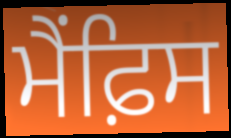
ਮੈਂਫ਼ਿਸ